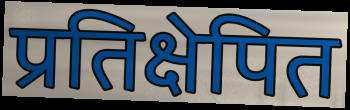
प्रतिक्षेपित